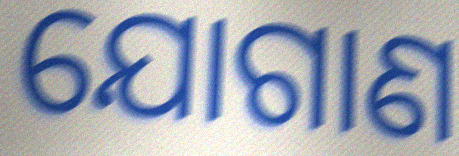
ଯୋଗାଣ